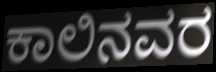
ಕಾಲಿನವರ